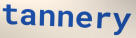
tannery